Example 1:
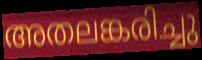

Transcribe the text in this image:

അതലങ്കരിച്ചു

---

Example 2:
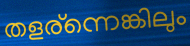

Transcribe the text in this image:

തളര്ന്നെങ്കിലും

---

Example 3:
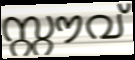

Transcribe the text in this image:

സ്റ്റൗവ്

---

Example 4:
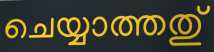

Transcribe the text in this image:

ചെയ്യാത്തതു്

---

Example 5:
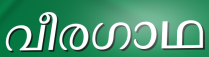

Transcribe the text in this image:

വീരഗാഥ